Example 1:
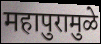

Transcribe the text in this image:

महापुरामुळे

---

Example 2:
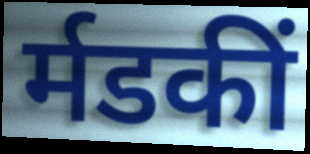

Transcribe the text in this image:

र्मडकीं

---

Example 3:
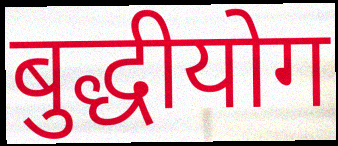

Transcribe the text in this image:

बुद्धीयोग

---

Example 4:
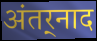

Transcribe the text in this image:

अंतर्नाद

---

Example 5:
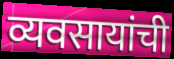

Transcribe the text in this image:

व्यवसायांची